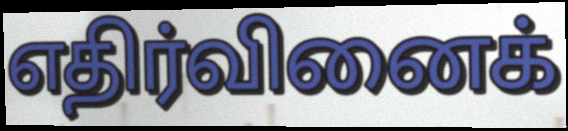
எதிர்வினைக்